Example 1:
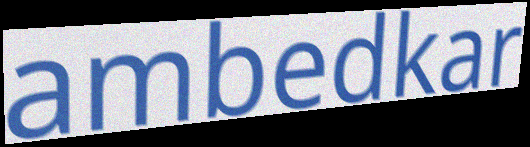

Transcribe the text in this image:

ambedkar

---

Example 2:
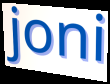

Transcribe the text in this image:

joni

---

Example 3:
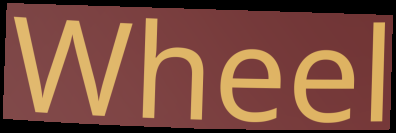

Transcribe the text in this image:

Wheel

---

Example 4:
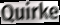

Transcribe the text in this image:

Quirke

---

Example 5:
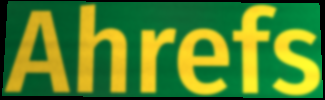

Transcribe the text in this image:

Ahrefs